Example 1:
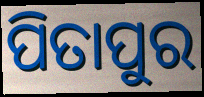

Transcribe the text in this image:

ପିତାପୁର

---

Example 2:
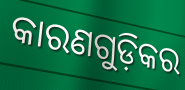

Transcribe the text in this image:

କାରଣଗୁଡ଼ିକର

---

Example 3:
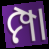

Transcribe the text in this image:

ମ୍ପା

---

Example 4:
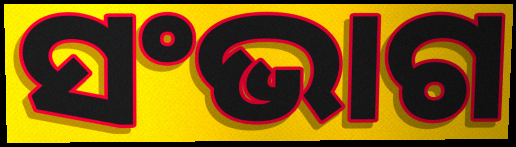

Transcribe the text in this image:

ସଂଭାଗ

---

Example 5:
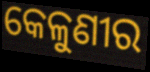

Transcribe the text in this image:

କେଳୁଣୀର